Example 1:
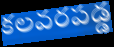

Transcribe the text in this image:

కలవరపడ్డ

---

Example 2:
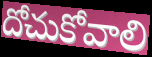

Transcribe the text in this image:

దోచుకోవాలి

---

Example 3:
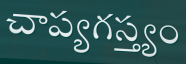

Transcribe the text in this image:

చాప్యగస్త్యం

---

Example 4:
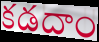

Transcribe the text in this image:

కడదాం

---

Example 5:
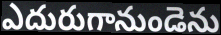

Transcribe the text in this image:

ఎదురుగానుండెను